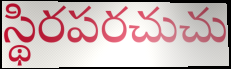
స్థిరపరచుచు